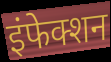
इंफेक्शन